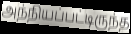
அந்நியப்பட்டிருந்த